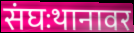
संघःथानावर